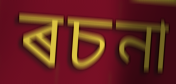
ৰচনা